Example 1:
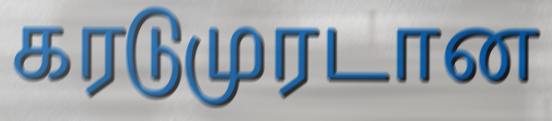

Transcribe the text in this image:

கரடுமுரடான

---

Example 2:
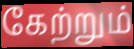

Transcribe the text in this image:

கேற்றும்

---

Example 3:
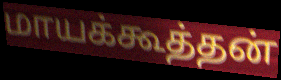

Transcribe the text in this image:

மாயக்கூத்தன்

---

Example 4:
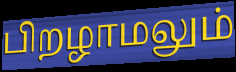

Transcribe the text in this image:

பிறழாமலும்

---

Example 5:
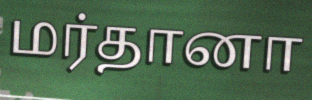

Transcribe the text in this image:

மர்தானா